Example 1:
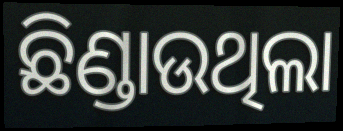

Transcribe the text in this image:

ଛିଣ୍ଡାଉଥିଲା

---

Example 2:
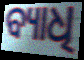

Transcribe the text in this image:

ବ୍ୟାଧି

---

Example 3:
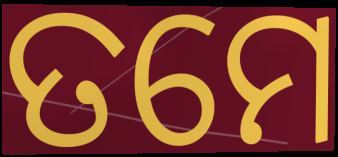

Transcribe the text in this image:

ତମେ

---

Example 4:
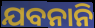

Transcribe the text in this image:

ଯବନାନି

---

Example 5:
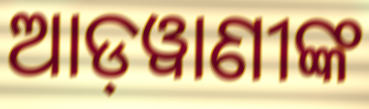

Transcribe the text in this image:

ଆଡ଼ୱାଣୀଙ୍କ